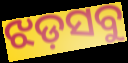
ଝଡ଼ସବୁ